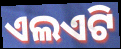
ଏଲଏଟି